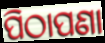
ପିଠାପଣା